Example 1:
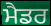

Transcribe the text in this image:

ਮੈਡਰ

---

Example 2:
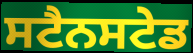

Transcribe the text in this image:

ਸਟੈਨਸਟੇਡ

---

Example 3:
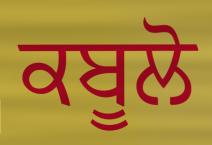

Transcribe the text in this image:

ਕਬੂਲੋ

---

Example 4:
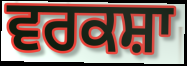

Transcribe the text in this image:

ਵਰਕਸ਼ਾ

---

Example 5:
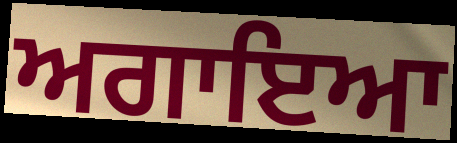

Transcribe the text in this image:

ਅਗਾਇਆ